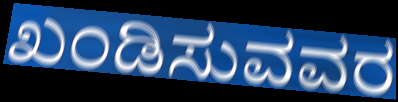
ಖಂಡಿಸುವವರ